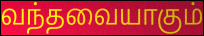
வந்தவையாகும்